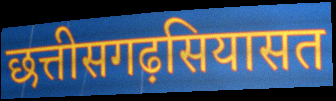
छत्तीसगढ़सियासत